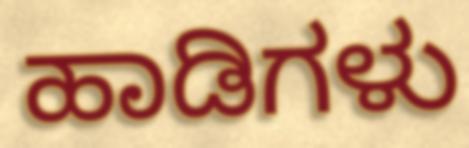
ಹಾಡಿಗಳು